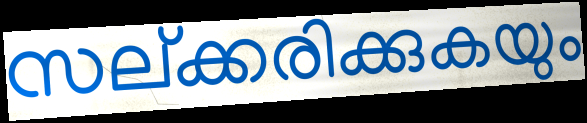
സല്ക്കരിക്കുകയും